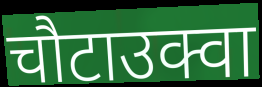
चौटाउक्वा